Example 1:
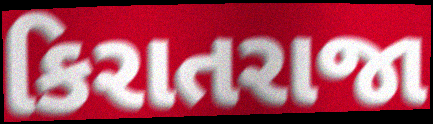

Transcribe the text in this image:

કિરાતરાજા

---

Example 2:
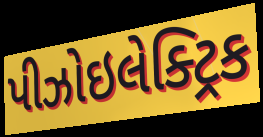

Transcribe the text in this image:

પીઝોઇલેક્ટ્રિક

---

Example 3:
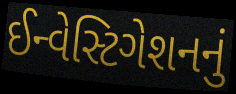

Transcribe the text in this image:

ઈન્વેસ્ટિગેશનનું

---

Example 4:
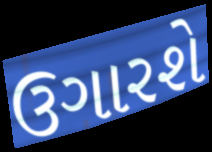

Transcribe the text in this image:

ઉગારશે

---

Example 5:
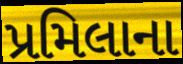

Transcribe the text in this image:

પ્રમિલાના